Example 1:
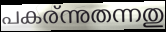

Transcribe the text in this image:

പകര്ന്നുതന്നതു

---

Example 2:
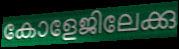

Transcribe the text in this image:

കോളേജിലേക്കു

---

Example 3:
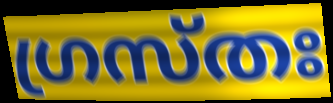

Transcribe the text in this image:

ഗ്രസ്തഃ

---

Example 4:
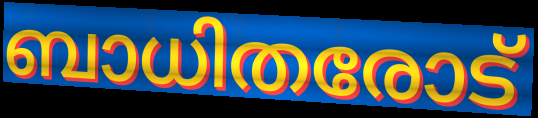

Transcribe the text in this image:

ബാധിതരോട്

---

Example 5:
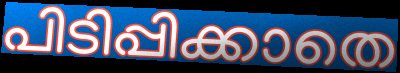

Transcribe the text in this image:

പിടിപ്പിക്കാതെ